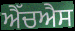
ਐੱਚਐਸ